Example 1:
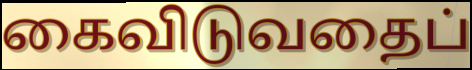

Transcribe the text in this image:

கைவிடுவதைப்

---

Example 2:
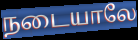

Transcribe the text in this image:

நடையாலே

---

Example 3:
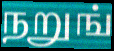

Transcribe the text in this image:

நறுங்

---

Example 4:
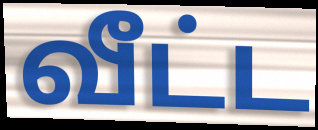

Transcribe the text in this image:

வீட்ட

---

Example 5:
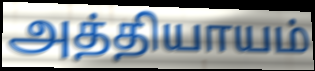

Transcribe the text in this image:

அத்தியாயம்